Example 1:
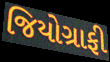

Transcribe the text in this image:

જિયોગ્રાફી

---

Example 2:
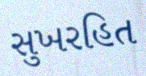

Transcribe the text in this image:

સુખરહિત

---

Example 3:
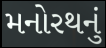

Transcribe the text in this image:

મનોરથનું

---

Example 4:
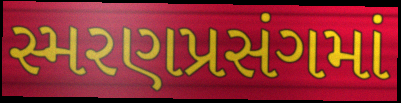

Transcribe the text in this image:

સ્મરણપ્રસંગમાં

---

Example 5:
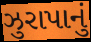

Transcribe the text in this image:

ઝુરાપાનું